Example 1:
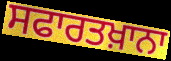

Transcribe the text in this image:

ਸਫਾਰਤਖ਼ਾਨਾ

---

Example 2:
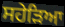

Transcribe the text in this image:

ਸਹੇੜਿਆ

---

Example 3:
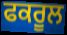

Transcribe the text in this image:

ਫਕਰੂਲ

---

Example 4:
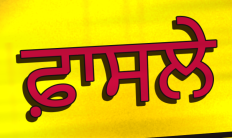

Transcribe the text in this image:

ਫ਼ਾਸਲੇ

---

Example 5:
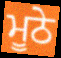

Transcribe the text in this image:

ਮੂਠੇ